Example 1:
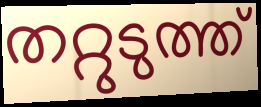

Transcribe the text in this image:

തറ്റുടുത്ത്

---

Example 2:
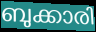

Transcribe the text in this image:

ബുക്കാരി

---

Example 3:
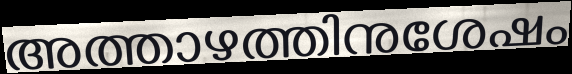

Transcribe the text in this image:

അത്താഴത്തിനുശേഷം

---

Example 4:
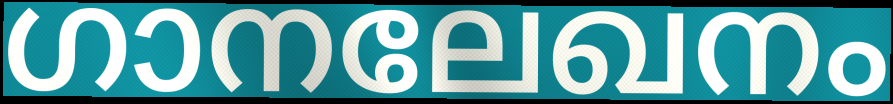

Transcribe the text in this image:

ഗാനലേഖനം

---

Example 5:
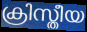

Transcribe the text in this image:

ക്രിസ്തീയ